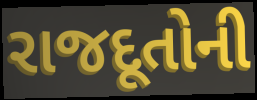
રાજદૂતોની